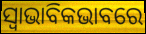
ସ୍ୱାଭାବିକଭାବରେ